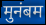
मुनंबम